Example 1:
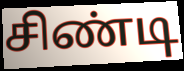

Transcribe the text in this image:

சிண்டி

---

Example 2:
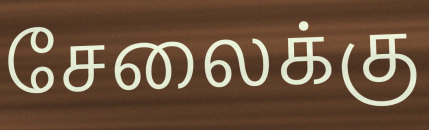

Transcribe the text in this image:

சேலைக்கு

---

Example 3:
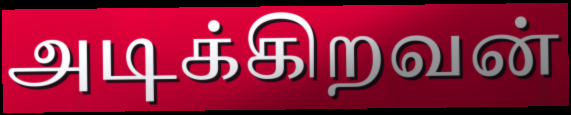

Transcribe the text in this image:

அடிக்கிறவன்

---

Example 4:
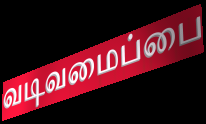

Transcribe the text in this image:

வடிவமைப்பை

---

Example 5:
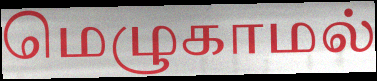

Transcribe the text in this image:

மெழுகாமல்